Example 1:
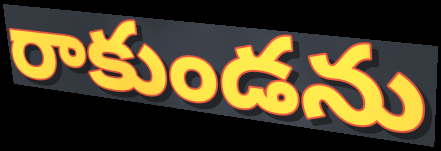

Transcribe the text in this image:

రాకుండను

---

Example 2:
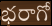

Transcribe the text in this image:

భరాగో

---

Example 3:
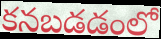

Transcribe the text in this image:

కనబడడంలో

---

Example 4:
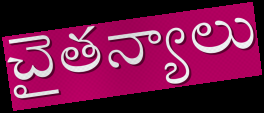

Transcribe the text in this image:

చైతన్యాలు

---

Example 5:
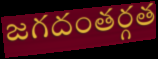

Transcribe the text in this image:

జగదంతర్గత